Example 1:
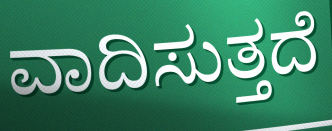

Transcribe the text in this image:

ವಾದಿಸುತ್ತದೆ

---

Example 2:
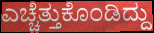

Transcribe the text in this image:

ಎಚ್ಚೆತ್ತುಕೊಂಡಿದ್ದು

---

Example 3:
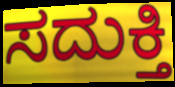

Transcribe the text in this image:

ಸದುಕ್ತಿ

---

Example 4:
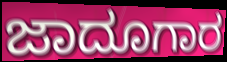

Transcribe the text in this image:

ಜಾದೂಗಾರ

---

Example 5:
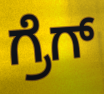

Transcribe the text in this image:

ಗ್ರೆಗ್